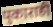
पुकाराही